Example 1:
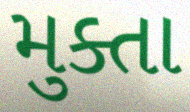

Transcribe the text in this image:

મુક્તા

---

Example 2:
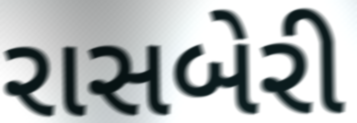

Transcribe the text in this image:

રાસબેરી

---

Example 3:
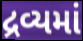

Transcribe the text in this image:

દ્રવ્યમાં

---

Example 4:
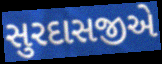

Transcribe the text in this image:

સુરદાસજીએ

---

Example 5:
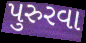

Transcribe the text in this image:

પુરુરવા